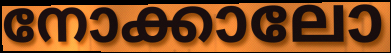
നോക്കാലോ